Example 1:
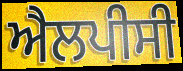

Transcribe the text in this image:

ਐਲਪੀਸੀ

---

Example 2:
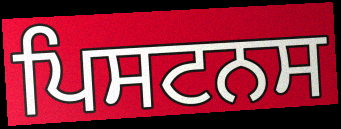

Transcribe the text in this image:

ਪਿਸਟਨਸ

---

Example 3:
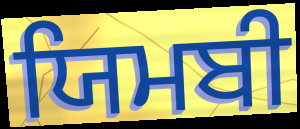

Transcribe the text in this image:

ਯਿਮਬੀ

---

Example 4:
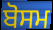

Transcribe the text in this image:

ਬੋਸਮ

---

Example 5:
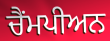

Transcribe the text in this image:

ਚੈਂਮਪੀਅਨ